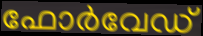
ഫോർവേഡ്